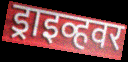
ड्राइव्हवर